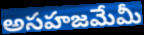
అసహజమేమీ